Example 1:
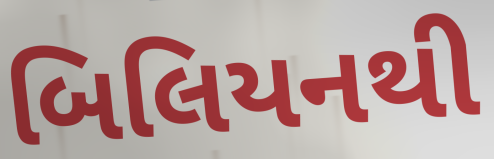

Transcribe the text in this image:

બિલિયનથી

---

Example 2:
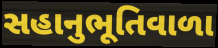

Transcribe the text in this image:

સહાનુભૂતિવાળા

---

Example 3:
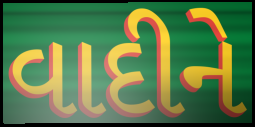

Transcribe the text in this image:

વાદીને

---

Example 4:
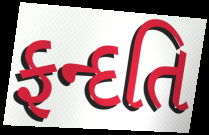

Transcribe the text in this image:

ફન્દતિ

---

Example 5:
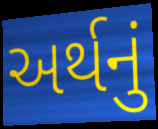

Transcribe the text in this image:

અર્થનું